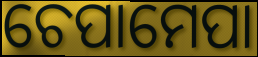
ଚେପାମେପା